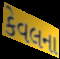
કેવલના